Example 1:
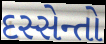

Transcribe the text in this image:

દસ્સેન્તો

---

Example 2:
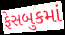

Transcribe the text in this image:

ફેસબુકમાં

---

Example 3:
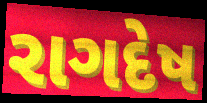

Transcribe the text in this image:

રાગદેષ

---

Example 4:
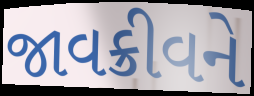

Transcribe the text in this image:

જાવક્રીવને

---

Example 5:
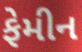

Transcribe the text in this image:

ફેમીન